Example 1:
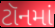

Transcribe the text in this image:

ટૉનમાં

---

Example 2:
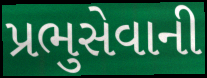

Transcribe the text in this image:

પ્રભુસેવાની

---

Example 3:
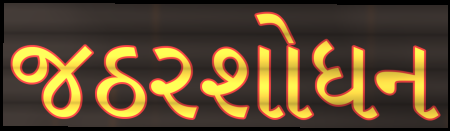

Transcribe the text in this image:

જઠરશોધન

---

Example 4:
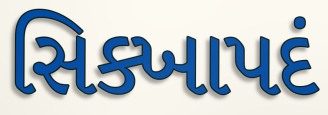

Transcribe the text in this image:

સિક્ખાપદં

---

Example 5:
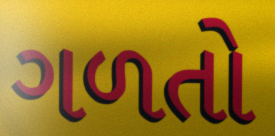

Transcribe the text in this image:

ગળતો